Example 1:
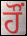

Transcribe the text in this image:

ਹੌਂ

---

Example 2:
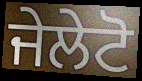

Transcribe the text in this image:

ਜੇਲੇਟੋ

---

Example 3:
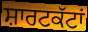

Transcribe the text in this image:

ਸ਼ਾਰਟਕੱਟਾਂ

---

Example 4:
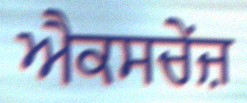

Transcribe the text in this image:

ਐਕਸਚੇਂਜ਼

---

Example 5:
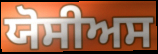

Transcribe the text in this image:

ਯੋਸੀਅਸ